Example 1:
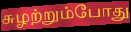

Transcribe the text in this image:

சுழற்றும்போது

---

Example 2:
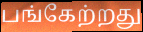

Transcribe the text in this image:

பங்கேற்றது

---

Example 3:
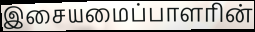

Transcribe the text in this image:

இசையமைப்பாளரின்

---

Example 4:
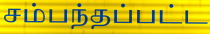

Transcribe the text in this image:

சம்பந்தப்பட்ட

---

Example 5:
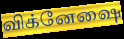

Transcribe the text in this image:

விக்னேஷை